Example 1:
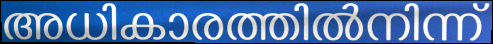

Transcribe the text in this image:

അധികാരത്തിൽനിന്ന്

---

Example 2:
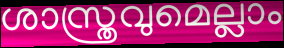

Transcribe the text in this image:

ശാസ്ത്രവുമെല്ലാം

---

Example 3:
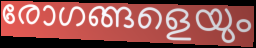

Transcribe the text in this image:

രോഗങ്ങളെയും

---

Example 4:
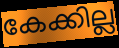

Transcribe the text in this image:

കേക്കില്ല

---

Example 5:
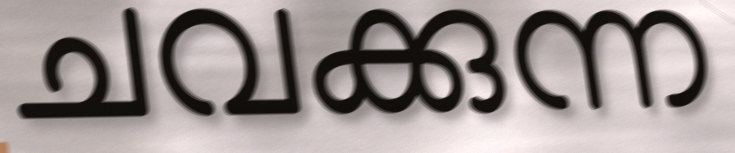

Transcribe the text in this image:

ചവക്കുന്ന